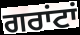
ਗਰਾਂਟਾਂ